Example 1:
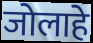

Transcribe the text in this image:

जोलाहे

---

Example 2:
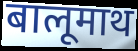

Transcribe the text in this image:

बालूमाथ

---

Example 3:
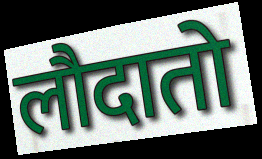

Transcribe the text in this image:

लौदातो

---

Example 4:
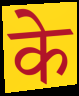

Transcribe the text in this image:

के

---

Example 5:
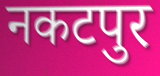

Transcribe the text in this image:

नकटपुर